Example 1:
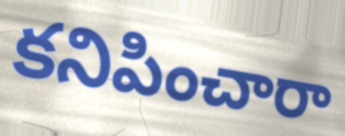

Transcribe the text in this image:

కనిపించారా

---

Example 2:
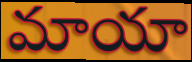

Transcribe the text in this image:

మాయా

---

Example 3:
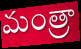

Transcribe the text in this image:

మంత్రా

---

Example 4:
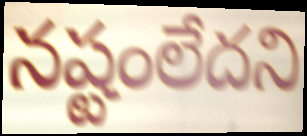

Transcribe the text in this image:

నష్టంలేదని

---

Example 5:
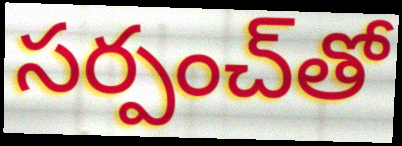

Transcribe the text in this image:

సర్పంచ్‌తో